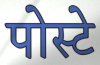
पोस्टे